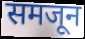
समजून